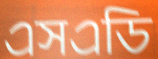
এসএডি